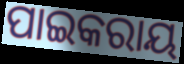
ପାଇକରାୟ